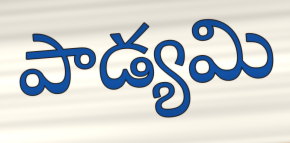
పాడ్యమి